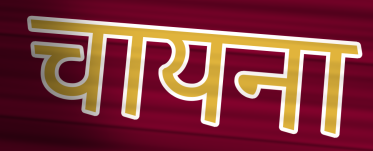
चायना